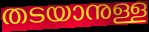
തടയാനുള്ള